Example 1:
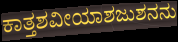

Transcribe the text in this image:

ಕಾತ್ತಶವೀಯಾಶಜುಶನನು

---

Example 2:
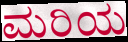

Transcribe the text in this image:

ಮರಿಯ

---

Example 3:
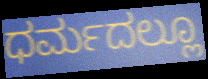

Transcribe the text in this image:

ಧರ್ಮದಲ್ಲೂ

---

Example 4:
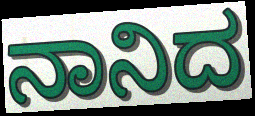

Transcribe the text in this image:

ನಾನಿದ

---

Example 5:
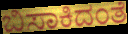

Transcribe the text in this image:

ಬಿಸಾಕಿದಂತೆ